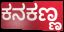
ಕನಕಣ್ಣ